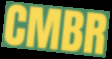
CMBR